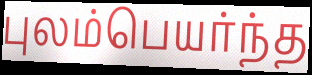
புலம்பெயர்ந்த